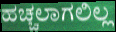
ಹಚ್ಚಲಾಗಲಿಲ್ಲ